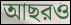
আছরও